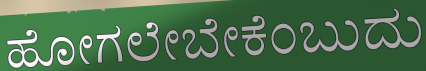
ಹೋಗಲೇಬೇಕೆಂಬುದು